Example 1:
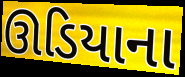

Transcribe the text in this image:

ઊડિયાના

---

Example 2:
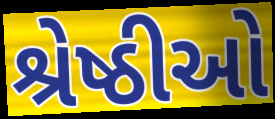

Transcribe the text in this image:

શ્રેષ્ઠીઓ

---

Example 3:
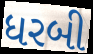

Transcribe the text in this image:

ધરબી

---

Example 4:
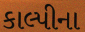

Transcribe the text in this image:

કાલ્પીના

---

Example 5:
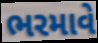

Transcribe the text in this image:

ભરમાવે